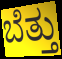
ಬೆತ್ತು